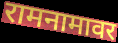
रामनामावर